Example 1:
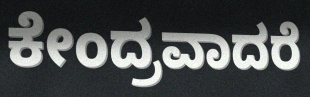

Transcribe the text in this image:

ಕೇಂದ್ರವಾದರೆ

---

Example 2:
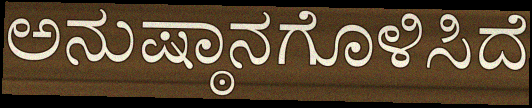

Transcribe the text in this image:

ಅನುಷ್ಠಾನಗೊಳಿಸಿದೆ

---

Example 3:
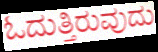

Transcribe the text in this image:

ಓದುತ್ತಿರುವುದು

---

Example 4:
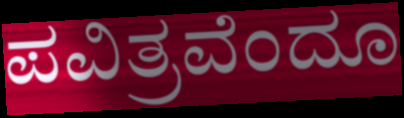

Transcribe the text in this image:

ಪವಿತ್ರವೆಂದೂ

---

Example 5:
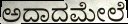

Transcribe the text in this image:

ಅದಾದಮೇಲೆ